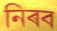
নিৰব